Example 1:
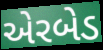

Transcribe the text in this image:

એરબેડ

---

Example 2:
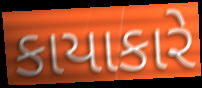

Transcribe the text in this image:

કાયાકારે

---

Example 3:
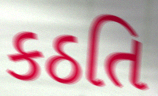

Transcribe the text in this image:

કઠતિ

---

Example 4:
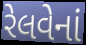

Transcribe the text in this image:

રેલવેનાં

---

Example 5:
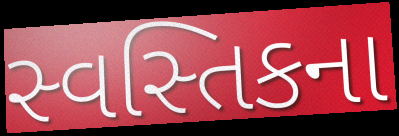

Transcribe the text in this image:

સ્વસ્તિકના